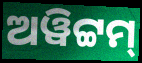
ଅୱିଟ୍ଟମ୍